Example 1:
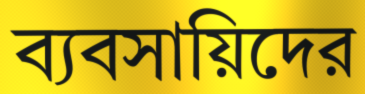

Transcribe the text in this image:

ব্যবসায়িদের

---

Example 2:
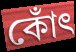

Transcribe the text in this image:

কোঁৎ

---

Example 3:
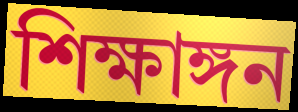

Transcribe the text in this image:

শিক্ষাঙ্গন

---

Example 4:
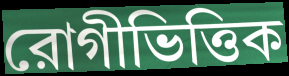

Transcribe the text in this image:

রোগীভিত্তিক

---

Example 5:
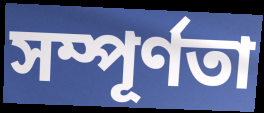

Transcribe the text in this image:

সম্পূর্ণতা